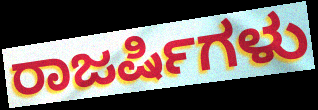
ರಾಜರ್ಷಿಗಳು